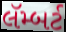
લૅમ્બર્ટ